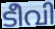
ടീവി